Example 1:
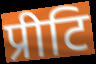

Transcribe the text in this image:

प्रीटि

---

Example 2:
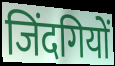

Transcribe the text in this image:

जिंदगियों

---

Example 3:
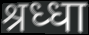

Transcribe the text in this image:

श्रध्धा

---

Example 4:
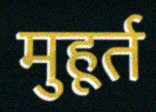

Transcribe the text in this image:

मुहूर्त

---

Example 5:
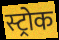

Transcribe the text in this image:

स्‍ट्रोक